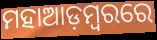
ମହାଆଡ଼ମ୍ୱରରେ